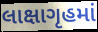
લાક્ષાગૃહમાં